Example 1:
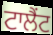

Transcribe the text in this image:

ਟਾਲੈਂਟ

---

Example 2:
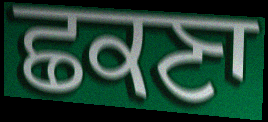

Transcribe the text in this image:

ਛਕਣਾ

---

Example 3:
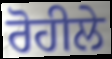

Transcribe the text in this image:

ਰੋਹੀਲੇ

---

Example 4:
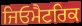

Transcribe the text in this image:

ਜਿਓਮੈਟਰਿਕ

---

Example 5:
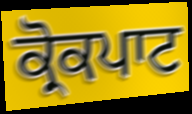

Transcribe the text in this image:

ਕ੍ਰੋਕਪਾਟ